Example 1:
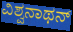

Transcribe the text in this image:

ವಿಶ್ವನಾಥನ್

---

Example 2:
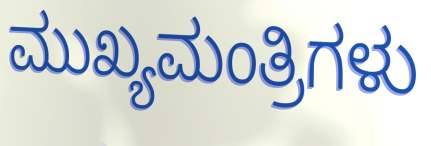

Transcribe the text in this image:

ಮುಖ್ಯಮಂತ್ರಿಗಳು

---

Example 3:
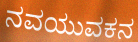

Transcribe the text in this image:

ನವಯುವಕನ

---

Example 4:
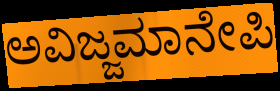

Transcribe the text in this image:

ಅವಿಜ್ಜಮಾನೇಪಿ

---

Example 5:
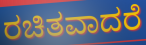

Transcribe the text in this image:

ರಚಿತವಾದರೆ